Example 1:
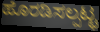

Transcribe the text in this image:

ಹೊರಡಿಸಲ್ಪಟ್ಟ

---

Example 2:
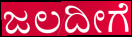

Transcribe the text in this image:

ಜಲದೀಗೆ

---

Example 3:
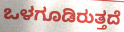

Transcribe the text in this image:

ಒಳಗೂಡಿರುತ್ತದೆ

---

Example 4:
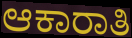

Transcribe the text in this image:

ಆಕಾರಾತಿ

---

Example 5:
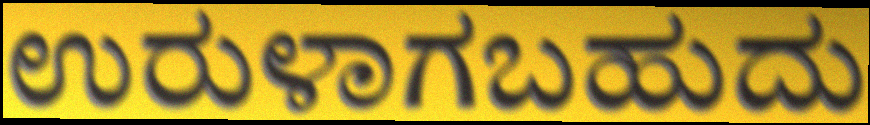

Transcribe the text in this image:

ಉರುಳಾಗಬಹುದು